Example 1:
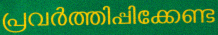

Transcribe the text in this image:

പ്രവർത്തിപ്പിക്കേണ്ട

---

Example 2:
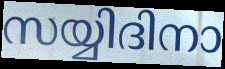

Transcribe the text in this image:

സയ്യിദിനാ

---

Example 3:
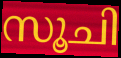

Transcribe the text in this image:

സൂചി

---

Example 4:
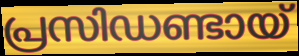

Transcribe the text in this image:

പ്രസിഡണ്ടായ്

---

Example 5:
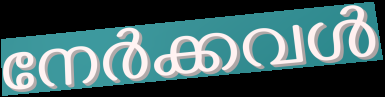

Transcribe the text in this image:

നേർക്കവൾ